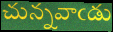
చున్నవాఁడు